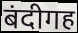
बंदीगह